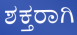
ಶಕ್ತರಾಗಿ